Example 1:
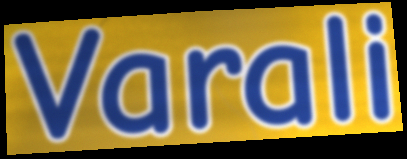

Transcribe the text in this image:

Varali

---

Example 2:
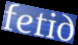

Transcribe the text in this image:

fetid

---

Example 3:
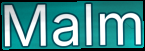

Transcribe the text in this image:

Malm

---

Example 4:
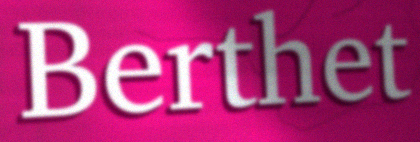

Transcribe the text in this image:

Berthet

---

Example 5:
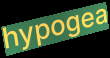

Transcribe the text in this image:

hypogea